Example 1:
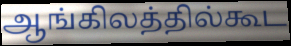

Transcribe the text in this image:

ஆங்கிலத்தில்கூட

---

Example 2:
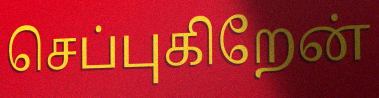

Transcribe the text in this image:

செப்புகிறேன்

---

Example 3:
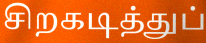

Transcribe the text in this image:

சிறகடித்துப்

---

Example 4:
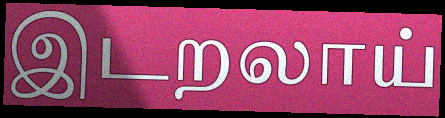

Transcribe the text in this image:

இடறலாய்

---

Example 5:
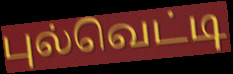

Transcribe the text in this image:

புல்வெட்டி